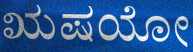
ಋಷಯೋ